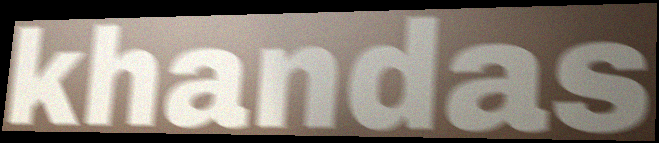
khandas